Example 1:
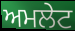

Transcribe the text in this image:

ਅਮਲੇਟ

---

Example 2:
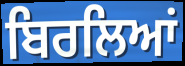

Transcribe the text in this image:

ਬਿਰਲਿਆਂ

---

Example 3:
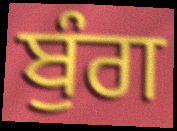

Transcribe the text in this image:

ਬੁੰਗ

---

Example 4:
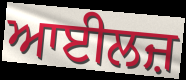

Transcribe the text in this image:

ਆਈਲਜ਼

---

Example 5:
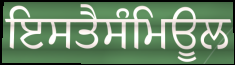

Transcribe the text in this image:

ਇਸਤੈਸੰਮਿਊਲ